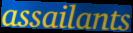
assailants